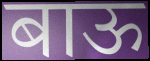
बाऊ